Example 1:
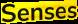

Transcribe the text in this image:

Senses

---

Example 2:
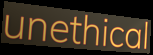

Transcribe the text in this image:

unethical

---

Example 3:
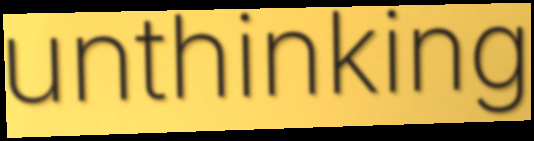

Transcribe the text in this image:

unthinking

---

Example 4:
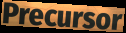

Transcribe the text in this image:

Precursor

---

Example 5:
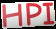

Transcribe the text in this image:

HPI